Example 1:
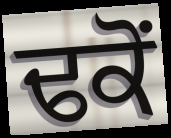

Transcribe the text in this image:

ਢਕੋਂ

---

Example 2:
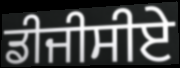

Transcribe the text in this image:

ਡੀਜੀਸੀਏ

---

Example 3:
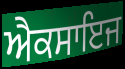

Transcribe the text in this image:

ਐਕਸਾਇਜ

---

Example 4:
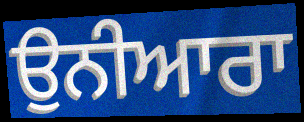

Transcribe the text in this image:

ਉਨੀਆਰਾ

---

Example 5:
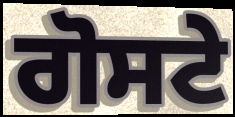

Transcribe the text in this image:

ਗੋਸਟੇ